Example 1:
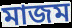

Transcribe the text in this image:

মাজম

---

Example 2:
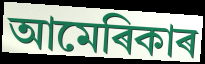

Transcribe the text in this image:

আমেৰিকাৰ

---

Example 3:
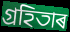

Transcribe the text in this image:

গ্ৰহিতাৰ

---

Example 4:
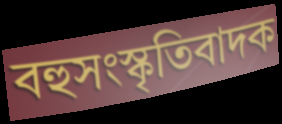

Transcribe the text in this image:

বহুসংস্কৃতিবাদক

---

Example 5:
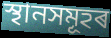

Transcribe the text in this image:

স্থানসমূহৰ